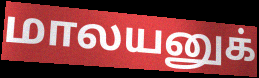
மாலயனுக்